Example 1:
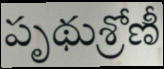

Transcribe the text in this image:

పృథుశ్రోణీ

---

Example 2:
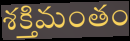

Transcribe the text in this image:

శక్తిమంతం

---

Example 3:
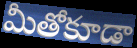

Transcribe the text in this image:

మీతోకూడా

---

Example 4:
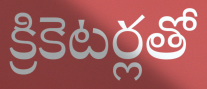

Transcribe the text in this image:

క్రికెటర్లతో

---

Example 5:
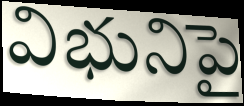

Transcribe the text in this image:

విభునిపై